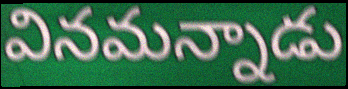
వినమన్నాడు